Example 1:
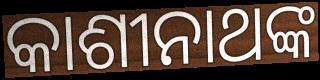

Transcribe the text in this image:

କାଶୀନାଥଙ୍କ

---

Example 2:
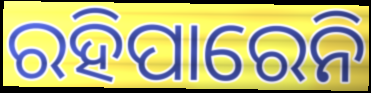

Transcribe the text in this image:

ରହିପାରେନି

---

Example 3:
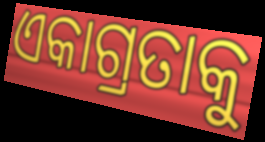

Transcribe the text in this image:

ଏକାଗ୍ରତାକୁ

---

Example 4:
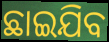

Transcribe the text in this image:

ଛାଇଯିବ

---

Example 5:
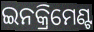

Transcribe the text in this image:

ଇନକ୍ରିମେଣ୍ଟ